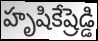
హృషికేష్రెడ్డి